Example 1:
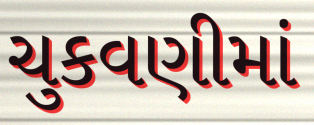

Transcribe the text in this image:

ચુકવણીમાં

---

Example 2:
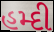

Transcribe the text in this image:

હમ્દી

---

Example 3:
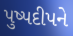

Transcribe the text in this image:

પુષ્પદીપને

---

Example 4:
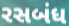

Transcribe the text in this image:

રસબંધ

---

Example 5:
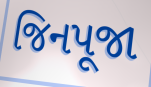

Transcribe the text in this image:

જિનપૂજા